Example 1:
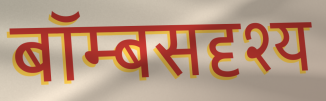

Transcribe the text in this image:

बॉम्बसदृश्य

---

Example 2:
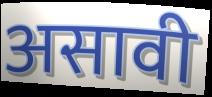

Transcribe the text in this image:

असावी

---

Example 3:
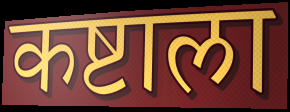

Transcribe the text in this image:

कष्टाला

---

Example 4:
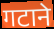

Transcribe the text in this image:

गटाने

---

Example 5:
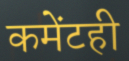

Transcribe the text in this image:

कमेंटही